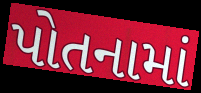
પોતનામાં